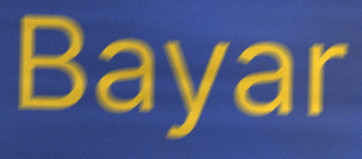
Bayar